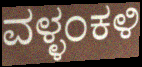
ವಳ್ಳಂಕಳಿ